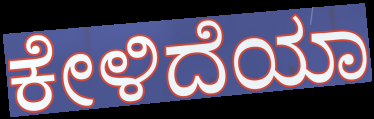
ಕೇಳಿದೆಯಾ